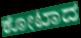
ಕೋಟಾದ